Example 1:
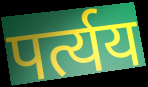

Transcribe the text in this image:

पर्त्यय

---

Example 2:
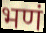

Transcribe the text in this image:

भणं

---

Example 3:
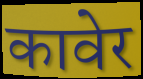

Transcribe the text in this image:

कावेर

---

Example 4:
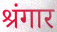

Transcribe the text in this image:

श्रंगार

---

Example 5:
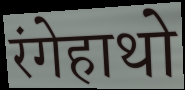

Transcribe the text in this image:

रंगेहाथो